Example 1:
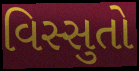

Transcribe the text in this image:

વિસ્સુતો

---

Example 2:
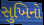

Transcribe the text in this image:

સુખિનો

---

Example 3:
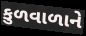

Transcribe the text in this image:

કુળવાળાને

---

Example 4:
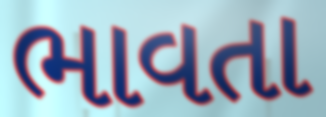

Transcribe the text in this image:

ભાવતા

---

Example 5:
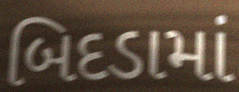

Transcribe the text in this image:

બિદડામાં